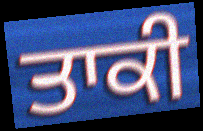
ਤਾਕੀ